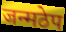
जन्मठेप